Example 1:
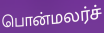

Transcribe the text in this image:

பொன்மலர்ச்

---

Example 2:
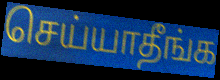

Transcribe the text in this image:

செய்யாதீங்க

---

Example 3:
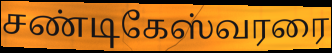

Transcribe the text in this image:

சண்டிகேஸ்வரரை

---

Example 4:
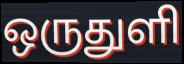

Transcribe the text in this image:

ஒருதுளி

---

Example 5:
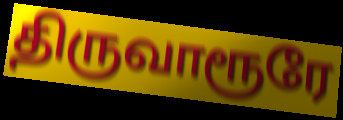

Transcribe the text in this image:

திருவாரூரே